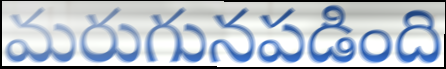
మరుగునపడింది